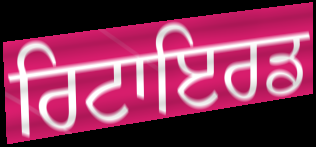
ਰਿਟਾਇਰਡ